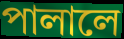
পালালে